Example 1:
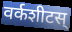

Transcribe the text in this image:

वर्कशीटस्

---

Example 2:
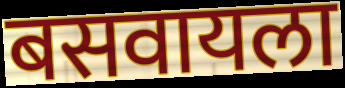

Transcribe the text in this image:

बसवायला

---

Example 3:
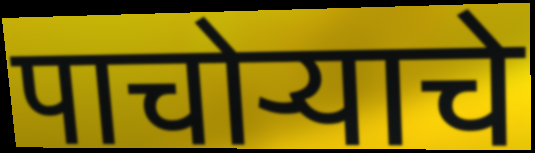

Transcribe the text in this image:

पाचोऱ्याचे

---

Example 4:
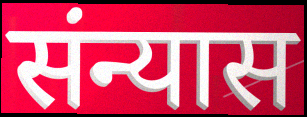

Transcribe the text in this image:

संन्यास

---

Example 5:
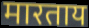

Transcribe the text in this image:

मारताय